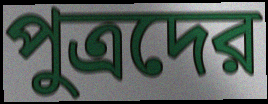
পুত্রদের